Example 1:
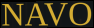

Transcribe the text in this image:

NAVO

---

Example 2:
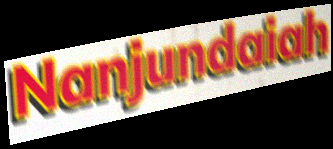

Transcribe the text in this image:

Nanjundaiah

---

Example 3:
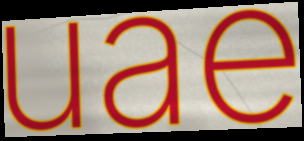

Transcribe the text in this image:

uae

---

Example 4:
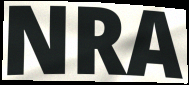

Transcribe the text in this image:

NRA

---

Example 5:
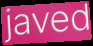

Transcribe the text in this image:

javed